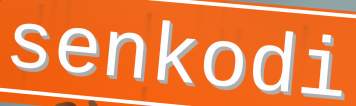
senkodi